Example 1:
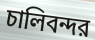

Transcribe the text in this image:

চালিবন্দর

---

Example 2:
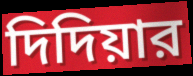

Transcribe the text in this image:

দিদিয়ার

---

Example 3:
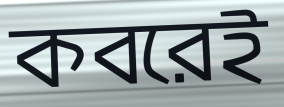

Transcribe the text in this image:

কবরেই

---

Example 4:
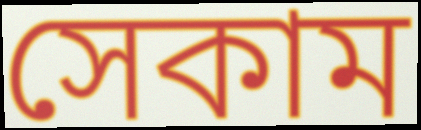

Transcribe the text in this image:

সেকাম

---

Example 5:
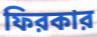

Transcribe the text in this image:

ফিরকার